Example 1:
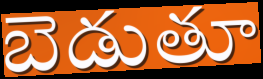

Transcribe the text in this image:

బెడుతూ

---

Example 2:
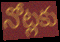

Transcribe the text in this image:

నోట్లకు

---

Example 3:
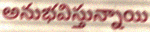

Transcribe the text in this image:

అనుభవిస్తున్నాయి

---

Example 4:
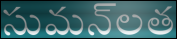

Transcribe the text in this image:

సుమన్‌లత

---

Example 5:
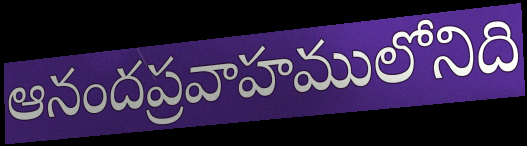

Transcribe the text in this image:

ఆనందప్రవాహములోనిది